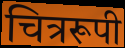
चित्ररूपी